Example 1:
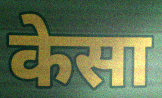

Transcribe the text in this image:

केसा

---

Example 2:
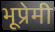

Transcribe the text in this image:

भूप्रेमी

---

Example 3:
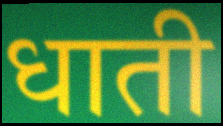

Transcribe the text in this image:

धाती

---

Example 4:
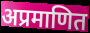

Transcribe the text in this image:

अप्रमाणित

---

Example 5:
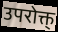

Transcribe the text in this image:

उपरोक्त्